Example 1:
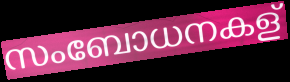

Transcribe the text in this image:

സംബോധനകള്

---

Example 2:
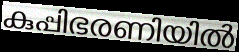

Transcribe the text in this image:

കുപ്പിഭരണിയിൽ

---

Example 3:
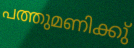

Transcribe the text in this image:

പത്തുമണിക്കു്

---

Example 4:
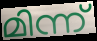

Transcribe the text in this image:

മിന്ന്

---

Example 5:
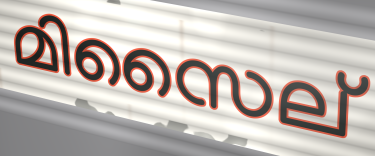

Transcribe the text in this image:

മിസൈല്